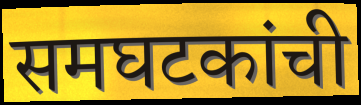
समघटकांची